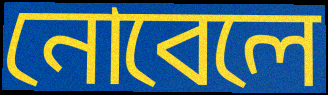
নোবেলে